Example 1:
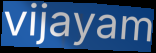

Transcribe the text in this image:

vijayam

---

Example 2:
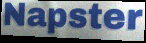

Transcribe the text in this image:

Napster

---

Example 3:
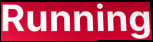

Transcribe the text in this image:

Running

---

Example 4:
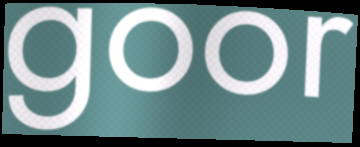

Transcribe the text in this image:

goor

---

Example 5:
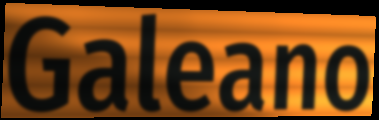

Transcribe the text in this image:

Galeano